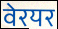
वेरयर